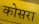
कोसरा